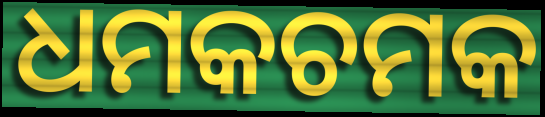
ଧମକଚମକ